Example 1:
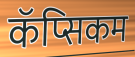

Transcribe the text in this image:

कॅप्सिकम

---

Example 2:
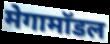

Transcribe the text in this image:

मेगामॉडल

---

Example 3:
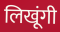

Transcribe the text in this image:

लिखूंगी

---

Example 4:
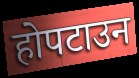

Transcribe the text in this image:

होपटाउन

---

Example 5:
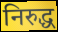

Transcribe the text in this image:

निरुद्ध